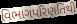
વિભાગપરિણતિથી